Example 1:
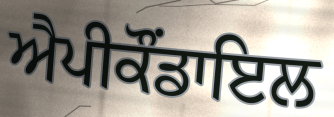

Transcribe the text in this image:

ਐਪੀਕੌਂਡਾਇਲ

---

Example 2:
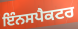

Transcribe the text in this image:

ਇੰਨਸਪੈਕਟਰ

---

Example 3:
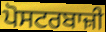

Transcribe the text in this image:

ਪੋਸਟਰਬਾਜ਼ੀ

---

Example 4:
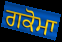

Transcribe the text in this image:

ਗਕੋਮਾ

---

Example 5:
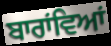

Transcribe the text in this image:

ਬਾਰਾਂਵਿਆਂ